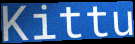
Kittu